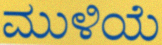
ಮುಳಿಯೆ